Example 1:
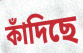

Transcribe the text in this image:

কাঁদিছে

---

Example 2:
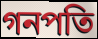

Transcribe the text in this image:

গনপতি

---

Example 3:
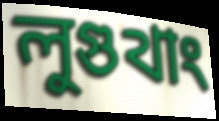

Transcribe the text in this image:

লুগুথাং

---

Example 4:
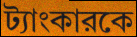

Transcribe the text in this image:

ট্যাংকারকে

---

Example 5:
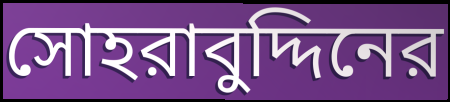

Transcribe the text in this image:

সোহরাবুদ্দিনের